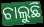
ଚାଲୁଛି